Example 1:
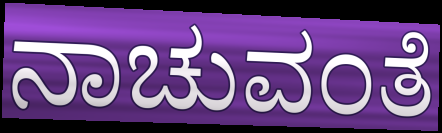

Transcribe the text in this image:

ನಾಚುವಂತೆ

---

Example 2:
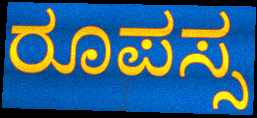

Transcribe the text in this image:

ರೂಪಸ್ಸ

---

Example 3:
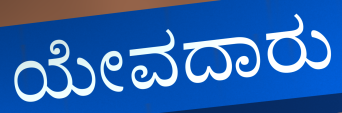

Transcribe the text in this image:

ಯೇವದಾರು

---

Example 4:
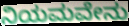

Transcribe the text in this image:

ನಿಯಮವೇನು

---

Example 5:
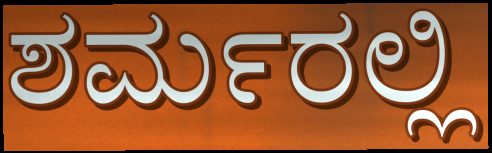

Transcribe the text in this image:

ಶರ್ಮರಲ್ಲಿ